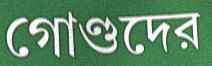
গোণ্ডদের